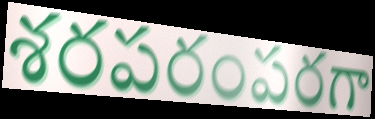
శరపరంపరగా